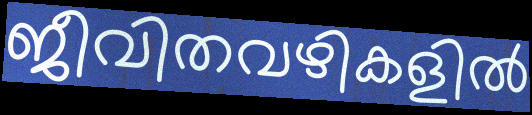
ജീവിതവഴികളിൽ